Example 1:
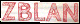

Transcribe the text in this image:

ZBLAN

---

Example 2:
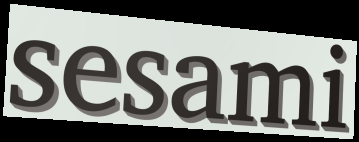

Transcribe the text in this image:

sesami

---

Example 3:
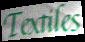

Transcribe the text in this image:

Textiles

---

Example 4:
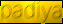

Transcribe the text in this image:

padiya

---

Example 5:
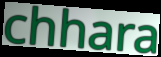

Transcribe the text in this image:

chhara